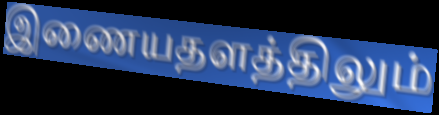
இணையதளத்திலும்